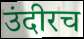
उंदीरच